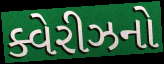
ક્વેરીઝનો